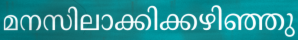
മനസിലാക്കിക്കഴിഞ്ഞു